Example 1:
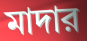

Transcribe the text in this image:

মাদার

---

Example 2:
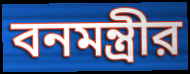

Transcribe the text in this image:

বনমন্ত্রীর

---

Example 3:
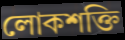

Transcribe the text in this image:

লোকশক্তি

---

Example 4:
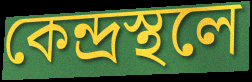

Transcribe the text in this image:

কেন্দ্রস্থলে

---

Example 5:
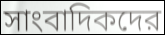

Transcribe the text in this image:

সাংবাদিকদের